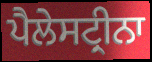
ਪੈਲੇਸਟ੍ਰੀਨਾ